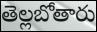
తెల్లబోతారు